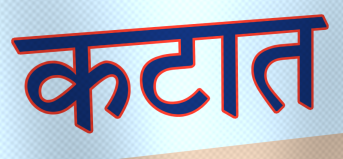
कटात